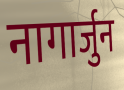
नागार्जुन